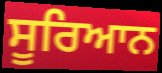
ਸੂਰਿਆਨ